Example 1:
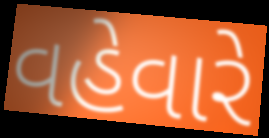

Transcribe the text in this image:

વહેવારે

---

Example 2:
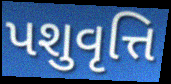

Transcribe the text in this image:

પશુવૃત્તિ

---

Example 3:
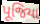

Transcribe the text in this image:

પૂજિયા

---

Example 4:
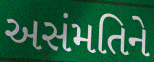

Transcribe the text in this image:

અસંમતિને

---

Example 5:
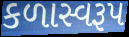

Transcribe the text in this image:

કળાસ્વરૂપ